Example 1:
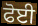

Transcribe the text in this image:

ਫੋਈ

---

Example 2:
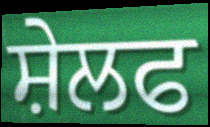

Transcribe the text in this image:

ਸ਼ੇਲਫ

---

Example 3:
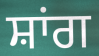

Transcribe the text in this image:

ਸ਼ਾਂਗ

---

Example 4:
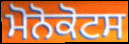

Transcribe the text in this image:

ਮੋਨੋਕੋਟਸ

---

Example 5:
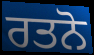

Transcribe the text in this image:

ਰਤਨੋ